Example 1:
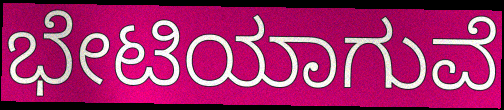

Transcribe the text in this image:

ಭೇಟಿಯಾಗುವೆ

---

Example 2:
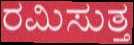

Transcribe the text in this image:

ರಮಿಸುತ್ತ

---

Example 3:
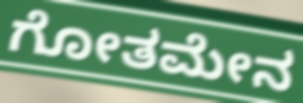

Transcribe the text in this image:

ಗೋತಮೇನ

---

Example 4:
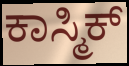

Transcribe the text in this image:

ಕಾಸ್ಮಿಕ್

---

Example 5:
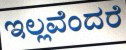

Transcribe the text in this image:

ಇಲ್ಲವೆಂದರೆ